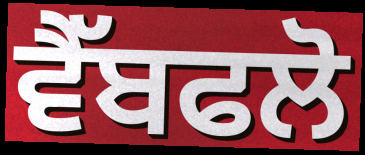
ਵੈੱਬਫਲੋ